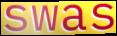
swas